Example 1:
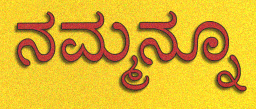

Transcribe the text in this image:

ನಮ್ಮನ್ನೂ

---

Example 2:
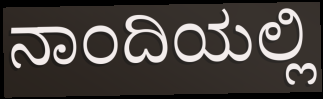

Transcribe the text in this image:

ನಾಂದಿಯಲ್ಲಿ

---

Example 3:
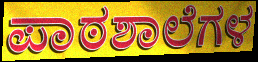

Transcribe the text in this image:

ಪಾಠಶಾಲೆಗಳ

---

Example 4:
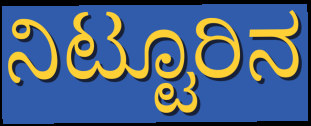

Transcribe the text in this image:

ನಿಟ್ಟೂರಿನ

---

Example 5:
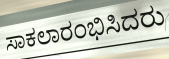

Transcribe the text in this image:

ಸಾಕಲಾರಂಭಿಸಿದರು